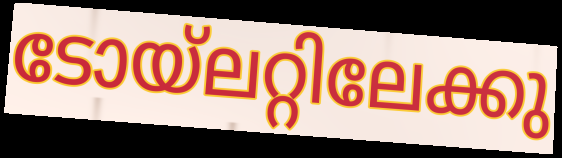
ടോയ്ലറ്റിലേക്കു